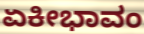
ಏಕೀಭಾವಂ